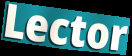
Lector